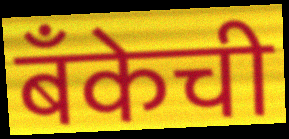
बँकेची